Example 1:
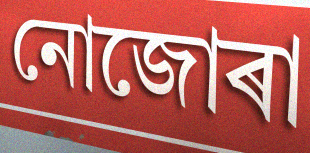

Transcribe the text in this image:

নোজোৰা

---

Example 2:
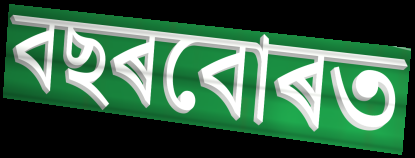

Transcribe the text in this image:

বছৰবোৰত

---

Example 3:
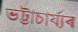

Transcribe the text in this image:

ভট্টাচাৰ্য্যৰ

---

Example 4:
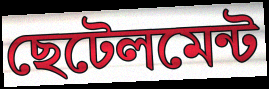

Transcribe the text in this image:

ছেটেলমেন্ট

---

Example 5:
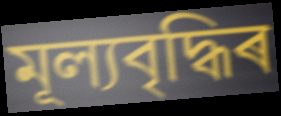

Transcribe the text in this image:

মূল্যবৃদ্ধিৰ